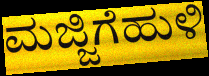
ಮಜ್ಜಿಗೆಹುಳಿ